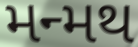
મન્મથ